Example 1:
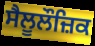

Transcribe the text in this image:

ਸੈਲੂਲੌਜ਼ਿਕ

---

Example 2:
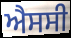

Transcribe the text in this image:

ਐਸਸੀ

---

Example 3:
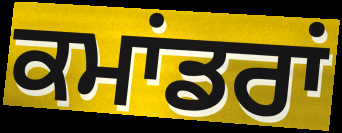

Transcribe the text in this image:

ਕਮਾਂਡਰਾਂ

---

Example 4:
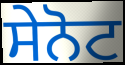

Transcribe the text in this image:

ਸੇਨੋਟ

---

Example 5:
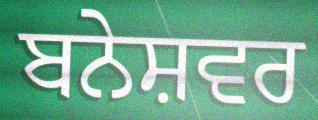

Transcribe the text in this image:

ਬਨੇਸ਼ਵਰ